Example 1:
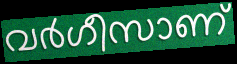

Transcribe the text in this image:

വർഗീസാണ്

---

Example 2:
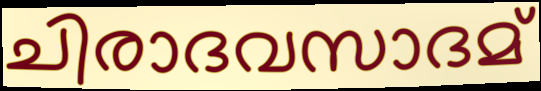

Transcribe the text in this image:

ചിരാദവസാദമ്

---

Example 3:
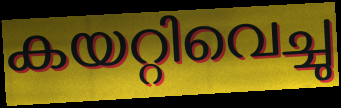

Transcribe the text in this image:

കയറ്റിവെച്ചു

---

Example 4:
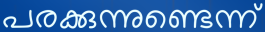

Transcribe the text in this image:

പരക്കുന്നുണ്ടെന്ന്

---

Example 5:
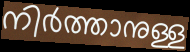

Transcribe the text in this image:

നിർത്താനുള്ള